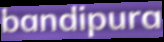
bandipura